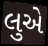
લુએ